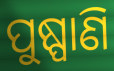
ପୁଷ୍ପାଣି